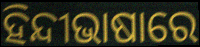
ହିନ୍ଦୀଭାଷାରେ